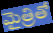
మైత్రితో